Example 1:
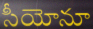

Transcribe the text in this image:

సీయోనూ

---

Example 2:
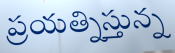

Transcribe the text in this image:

ప్రయత్నిస్తున్న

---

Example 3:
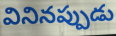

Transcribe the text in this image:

వినినప్పుడు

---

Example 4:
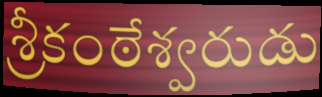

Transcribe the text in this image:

శ్రీకంఠేశ్వరుడు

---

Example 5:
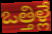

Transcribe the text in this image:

ఒత్తిళ్లే